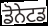
ਡੋਨੇਟਡ